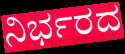
ನಿರ್ಭರದ